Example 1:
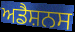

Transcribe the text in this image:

ਅਡੈਸ਼ਨਸ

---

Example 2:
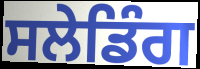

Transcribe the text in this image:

ਸਲੇਡਿੰਗ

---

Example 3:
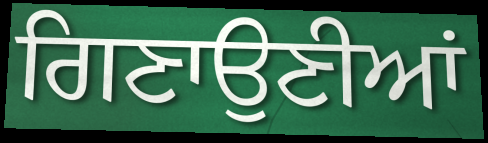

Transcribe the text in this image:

ਗਿਣਾਉਣੀਆਂ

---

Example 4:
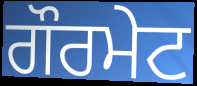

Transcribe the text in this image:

ਗੌਰਮੇਟ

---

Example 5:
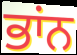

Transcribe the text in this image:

ਭਾਂਨ